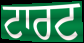
ਟਾਰਟ